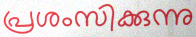
പ്രശംസിക്കുന്നു